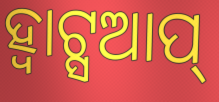
ହ୍ୱାଟ୍ସଆପ୍